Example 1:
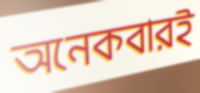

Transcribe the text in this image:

অনেকবারই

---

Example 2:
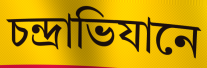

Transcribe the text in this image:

চন্দ্রাভিযানে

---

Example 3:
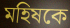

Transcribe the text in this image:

মহিষকে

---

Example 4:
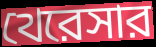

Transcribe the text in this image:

থেরেসার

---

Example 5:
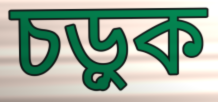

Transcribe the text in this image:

চড়ুক